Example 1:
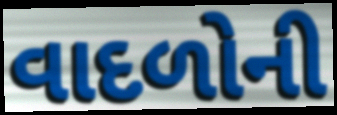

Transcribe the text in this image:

વાદળોની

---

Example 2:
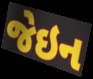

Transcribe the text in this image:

જેઇન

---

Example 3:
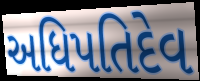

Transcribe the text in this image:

અધિપતિદેવ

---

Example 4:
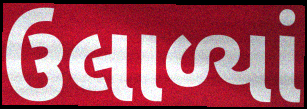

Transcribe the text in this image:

ઉલાળ્યાં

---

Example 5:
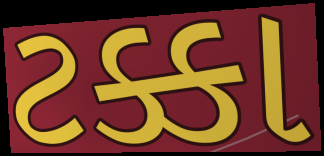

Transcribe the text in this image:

ટક્કા